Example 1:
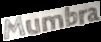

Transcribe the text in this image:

Mumbra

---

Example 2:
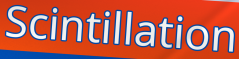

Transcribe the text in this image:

Scintillation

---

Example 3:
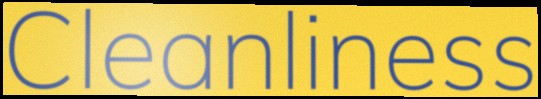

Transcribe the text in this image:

Cleanliness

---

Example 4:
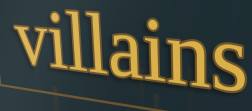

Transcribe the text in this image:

villains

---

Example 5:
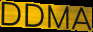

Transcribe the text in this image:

DDMA